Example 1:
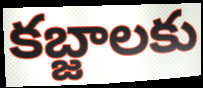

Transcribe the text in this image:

కబ్జాలకు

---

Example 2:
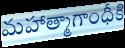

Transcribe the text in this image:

మహాత్మాగాంధీకి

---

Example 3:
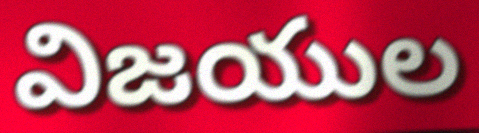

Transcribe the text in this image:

విజయుల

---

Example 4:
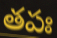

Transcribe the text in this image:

తపః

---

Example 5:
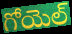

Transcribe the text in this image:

గోయెల్